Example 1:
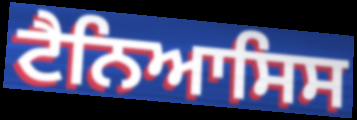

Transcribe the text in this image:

ਟੈਨਿਆਸਿਸ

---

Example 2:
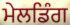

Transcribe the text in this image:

ਮੇਲਡਿੰਗ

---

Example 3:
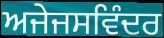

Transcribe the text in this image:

ਅਜੇਜਸਵਿੰਦਰ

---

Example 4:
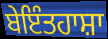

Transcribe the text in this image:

ਬੇਇੰਤਹਾਸ਼ਾ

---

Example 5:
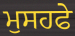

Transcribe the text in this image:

ਮੁਸਹਫੇ